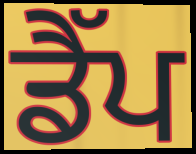
ਡੈੱਪ